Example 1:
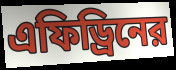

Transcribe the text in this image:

এফিড্রিনের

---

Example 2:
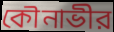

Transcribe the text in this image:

কৌনাভীর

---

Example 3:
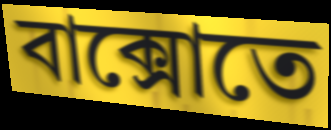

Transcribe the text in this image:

বাক্সোতে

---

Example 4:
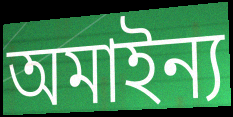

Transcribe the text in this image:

অমাইন্য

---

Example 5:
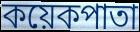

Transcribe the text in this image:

কয়েকপাতা